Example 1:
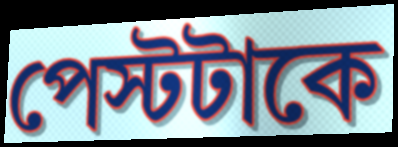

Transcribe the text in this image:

পেস্টটাকে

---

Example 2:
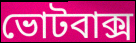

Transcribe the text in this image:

ভোটবাক্স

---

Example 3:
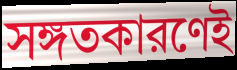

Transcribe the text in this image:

সঙ্গতকারণেই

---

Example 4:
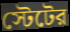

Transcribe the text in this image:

স্টেটের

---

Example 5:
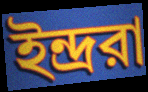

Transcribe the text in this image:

ইন্দ্ররা